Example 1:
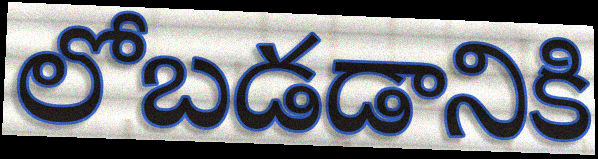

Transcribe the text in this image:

లోబడడానికి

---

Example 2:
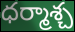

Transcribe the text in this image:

ధర్మాశ్చ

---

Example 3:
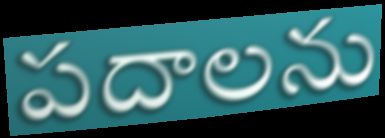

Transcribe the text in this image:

పదాలను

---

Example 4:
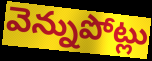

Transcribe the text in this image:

వెన్నుపోట్లు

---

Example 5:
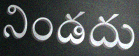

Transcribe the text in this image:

నిండదు